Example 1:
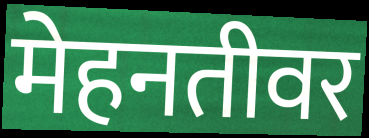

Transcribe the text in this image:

मेहनतीवर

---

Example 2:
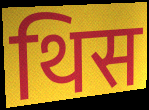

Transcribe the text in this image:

थिस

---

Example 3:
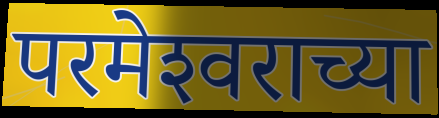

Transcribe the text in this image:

परमेश्‍वराच्या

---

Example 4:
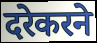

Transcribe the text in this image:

दरेकरने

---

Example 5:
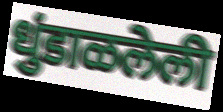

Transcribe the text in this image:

धुंडाळलेली